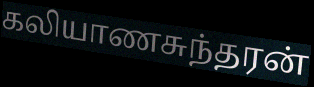
கலியாணசுந்தரன்